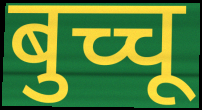
बुच्चू